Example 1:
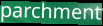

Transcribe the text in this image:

parchment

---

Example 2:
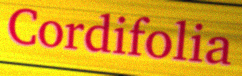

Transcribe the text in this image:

Cordifolia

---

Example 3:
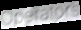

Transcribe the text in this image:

Operators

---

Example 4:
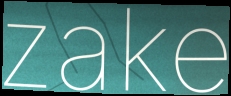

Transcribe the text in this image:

zake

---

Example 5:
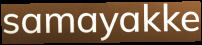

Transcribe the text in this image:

samayakke